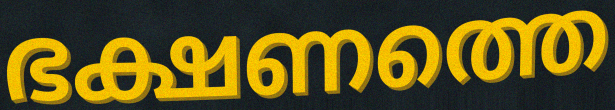
ഭക്ഷണത്തെ